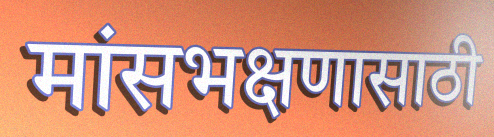
मांसभक्षणासाठी